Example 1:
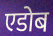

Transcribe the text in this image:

एडोब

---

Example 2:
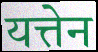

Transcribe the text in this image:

यत्तेन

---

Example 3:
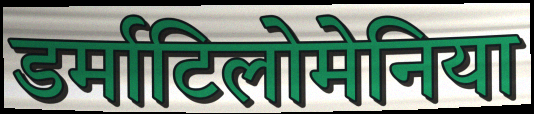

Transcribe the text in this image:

डर्माटिलोमेनिया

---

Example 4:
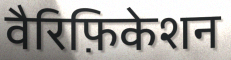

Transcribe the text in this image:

वैरिफ़िकेशन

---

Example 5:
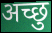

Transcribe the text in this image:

अच्छु